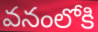
వనంలోకి